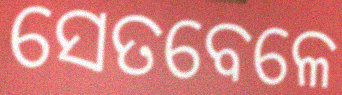
ସେତବେଳେ